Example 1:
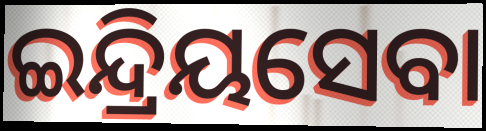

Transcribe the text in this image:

ଇନ୍ଦ୍ରିୟସେବା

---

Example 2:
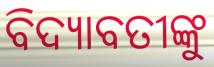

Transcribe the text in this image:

ବିଦ୍ୟାବତୀଙ୍କୁ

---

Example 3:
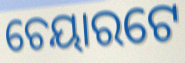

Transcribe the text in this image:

ଚେୟାରଟେ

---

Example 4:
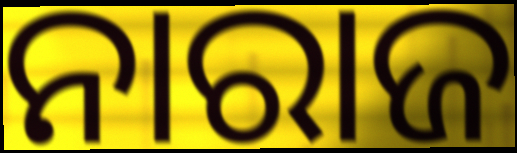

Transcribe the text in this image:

ନାରାଜ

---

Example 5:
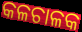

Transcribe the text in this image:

କଳଚାଳକ